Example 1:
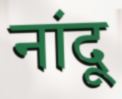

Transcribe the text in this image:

नांदू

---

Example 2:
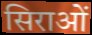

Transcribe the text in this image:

सिराओं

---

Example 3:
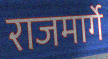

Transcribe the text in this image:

राजमार्गे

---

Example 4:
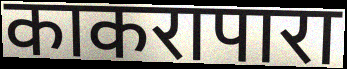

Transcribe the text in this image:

काकरापारा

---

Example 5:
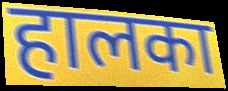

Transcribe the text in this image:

हालका